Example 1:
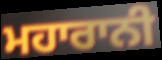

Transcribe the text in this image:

ਮਹਾਰਾਨੀ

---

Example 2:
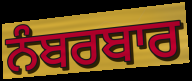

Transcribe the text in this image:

ਨੰਬਰਬਾਰ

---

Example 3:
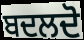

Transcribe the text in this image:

ਬਦਲਦੋ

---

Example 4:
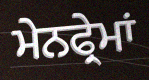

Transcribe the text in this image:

ਮੇਨਫ੍ਰੇਮਾਂ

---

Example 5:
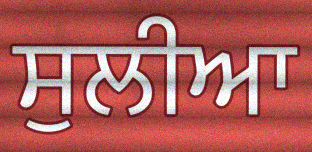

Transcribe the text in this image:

ਸੁਲੀਆ